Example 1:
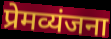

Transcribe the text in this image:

प्रेमव्यंजना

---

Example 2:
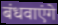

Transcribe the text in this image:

बंधवाएंगे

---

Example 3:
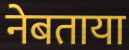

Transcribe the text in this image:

नेबताया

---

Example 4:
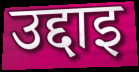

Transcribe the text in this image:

उद्दाइ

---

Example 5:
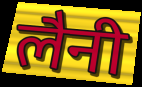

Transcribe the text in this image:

लैनी